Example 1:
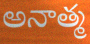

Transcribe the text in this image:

అనాత్మ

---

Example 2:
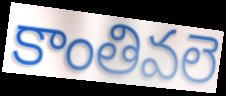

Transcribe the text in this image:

కాంతివలె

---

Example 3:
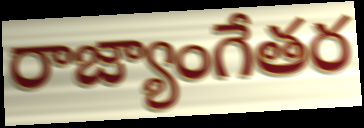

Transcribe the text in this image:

రాజ్యాంగేతర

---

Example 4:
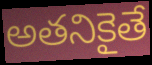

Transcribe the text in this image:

అతనికైతే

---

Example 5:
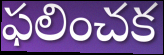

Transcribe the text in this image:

ఫలించక